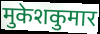
मुकेशकुमार